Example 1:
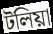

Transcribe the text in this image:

টলিয়া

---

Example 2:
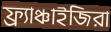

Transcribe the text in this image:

ফ্র্যাঞ্চাইজিরা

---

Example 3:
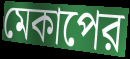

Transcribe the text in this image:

মেকাপের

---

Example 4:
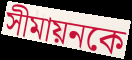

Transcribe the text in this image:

সীমায়নকে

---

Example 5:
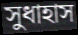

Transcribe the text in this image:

সুধাহাস